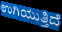
ಉಗಿಯುತ್ತಿದೆ